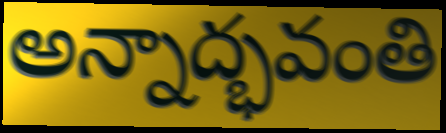
అన్నాద్భవంతి